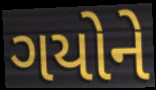
ગયોને